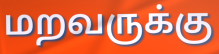
மறவருக்கு